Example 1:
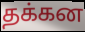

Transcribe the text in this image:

தக்கன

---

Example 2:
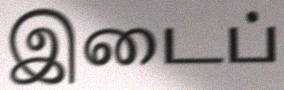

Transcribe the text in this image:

இடைப்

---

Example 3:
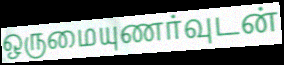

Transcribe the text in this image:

ஒருமையுணர்வுடன்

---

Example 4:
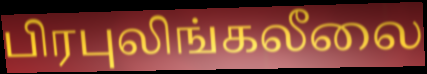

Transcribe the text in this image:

பிரபுலிங்கலீலை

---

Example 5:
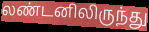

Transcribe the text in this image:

லண்டனிலிருந்து